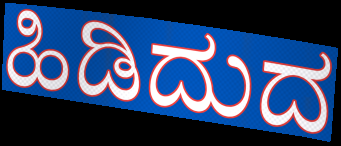
ಹಿಡಿದುದ